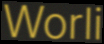
Worli